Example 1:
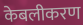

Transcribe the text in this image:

केबलीकरण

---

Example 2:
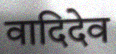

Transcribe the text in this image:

वादिदेव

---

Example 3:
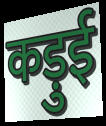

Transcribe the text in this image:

कड़ुई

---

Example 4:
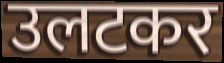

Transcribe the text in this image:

उलटकर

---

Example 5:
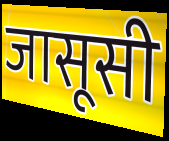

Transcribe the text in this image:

जासूसी